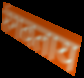
रंगवताय